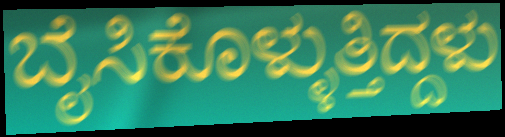
ಬೈಸಿಕೊಳ್ಳುತ್ತಿದ್ದಳು